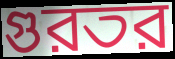
গুরতর